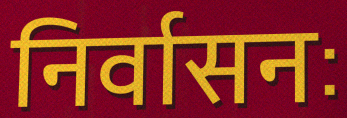
निर्वासनः